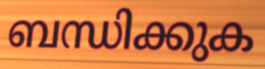
ബന്ധിക്കുക